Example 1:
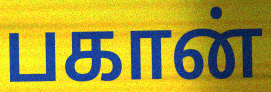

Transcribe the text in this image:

பகான்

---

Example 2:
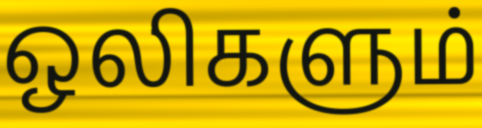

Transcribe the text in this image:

ஒலிகளும்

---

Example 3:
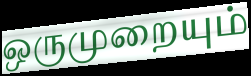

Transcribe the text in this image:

ஒருமுறையும்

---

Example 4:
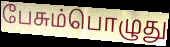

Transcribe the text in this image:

பேசும்பொழுது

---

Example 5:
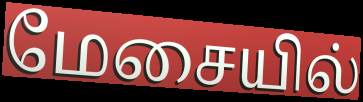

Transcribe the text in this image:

மேசையில்